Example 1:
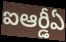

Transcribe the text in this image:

ఐఆర్డీఏ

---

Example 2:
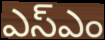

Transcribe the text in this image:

ఎస్ఎం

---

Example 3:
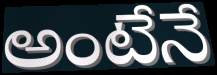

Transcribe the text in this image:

అంటేనే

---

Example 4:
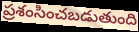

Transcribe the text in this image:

ప్రశంసించబడుతుంది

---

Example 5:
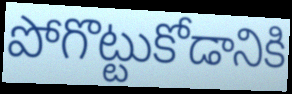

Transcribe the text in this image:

పోగొట్టుకోడానికి